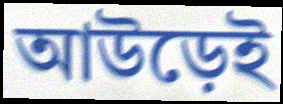
আউড়েই